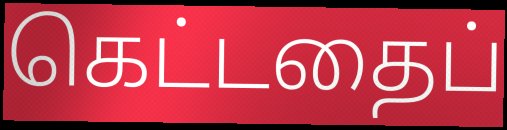
கெட்டதைப்